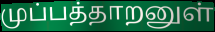
முப்பத்தாறனுள்